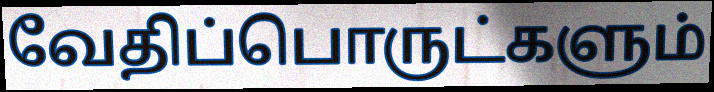
வேதிப்பொருட்களும்